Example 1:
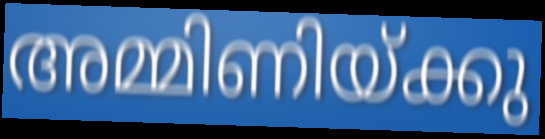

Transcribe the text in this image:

അമ്മിണിയ്ക്കു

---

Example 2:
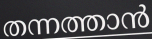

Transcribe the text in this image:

തന്നത്താൻ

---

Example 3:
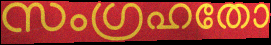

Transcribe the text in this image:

സംഗ്രഹതോ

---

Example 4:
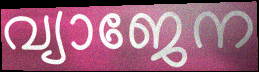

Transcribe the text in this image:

വ്യാജേന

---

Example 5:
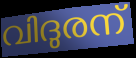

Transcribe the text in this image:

വിദുരന്